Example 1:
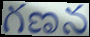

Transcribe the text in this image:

గణన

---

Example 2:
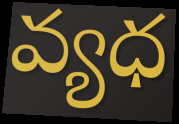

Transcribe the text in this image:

వ్యధ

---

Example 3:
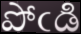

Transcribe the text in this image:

పోఁడి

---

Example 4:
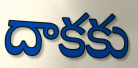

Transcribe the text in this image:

దాకకు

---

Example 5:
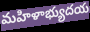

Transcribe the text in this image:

మహిళాభ్యుదయ